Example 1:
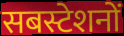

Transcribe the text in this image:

सबस्टेशनों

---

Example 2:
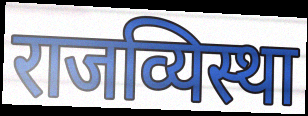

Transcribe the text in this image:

राजव्यिस्था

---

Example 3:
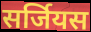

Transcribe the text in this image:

सर्जियस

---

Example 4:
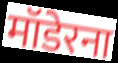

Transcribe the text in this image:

मॉडेरना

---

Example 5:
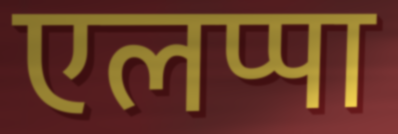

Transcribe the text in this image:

एलप्पा